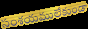
సంశయములేకుండా